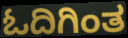
ಓದಿಗಿಂತ